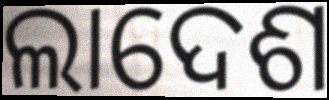
ଲାଦେଶ